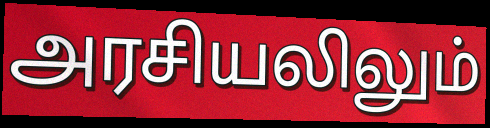
அரசியலிலும்